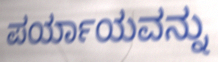
ಪರ್ಯಾಯವನ್ನು